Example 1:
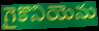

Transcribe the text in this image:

గైకొనియెను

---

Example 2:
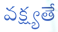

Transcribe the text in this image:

వక్ష్యతే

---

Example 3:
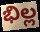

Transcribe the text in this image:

భిల్ల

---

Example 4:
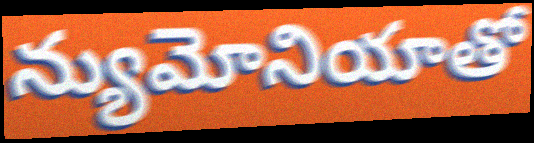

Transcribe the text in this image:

న్యుమోనియాతో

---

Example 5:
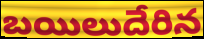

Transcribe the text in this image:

బయిలుదేరిన